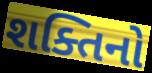
શક્તિનો